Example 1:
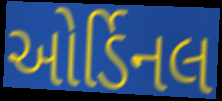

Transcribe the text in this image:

ઓર્ડિનલ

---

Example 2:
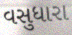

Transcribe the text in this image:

વસુધારા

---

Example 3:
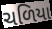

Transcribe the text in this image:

ચળિયા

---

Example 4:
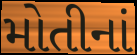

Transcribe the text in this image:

મોતીનાં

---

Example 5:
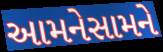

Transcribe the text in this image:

આમનેસામને